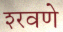
श्रवणे